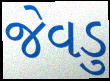
જેવડુ